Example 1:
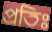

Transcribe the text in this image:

প্রতিঃ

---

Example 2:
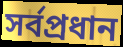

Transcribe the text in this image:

সর্বপ্রধান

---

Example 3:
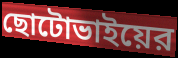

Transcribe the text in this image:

ছোটোভাইয়ের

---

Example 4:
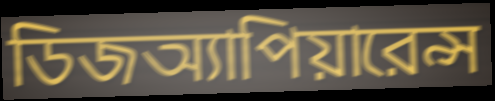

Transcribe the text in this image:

ডিজঅ্যাপিয়ারেন্স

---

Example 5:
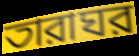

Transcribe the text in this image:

তারাঘর